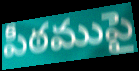
పీఠముపై